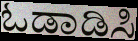
ಓಡಾಡಿಸಿ